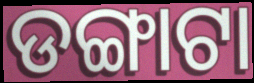
ଡଙ୍ଗାଟା